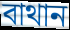
বাথান